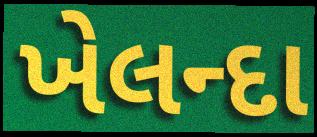
ખેલન્દા